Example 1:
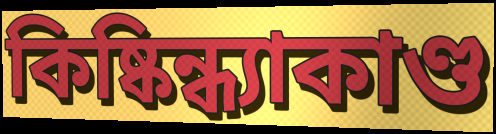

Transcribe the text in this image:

কিষ্কিন্ধ্যাকাণ্ড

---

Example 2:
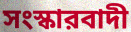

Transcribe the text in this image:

সংস্কারবাদী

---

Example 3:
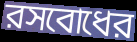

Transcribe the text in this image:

রসবোধের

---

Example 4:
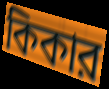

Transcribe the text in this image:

কিকার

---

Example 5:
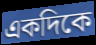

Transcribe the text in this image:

একদিকে